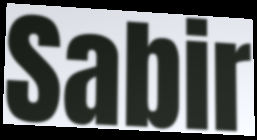
Sabir